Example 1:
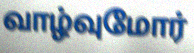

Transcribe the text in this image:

வாழ்வுமோர்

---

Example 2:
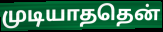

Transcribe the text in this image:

முடியாததென்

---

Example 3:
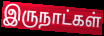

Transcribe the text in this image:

இருநாட்கள்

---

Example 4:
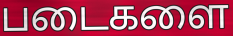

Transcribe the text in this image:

படைகளை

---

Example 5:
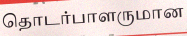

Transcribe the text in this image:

தொடர்பாளருமான